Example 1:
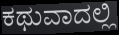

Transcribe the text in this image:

ಕಥುವಾದಲ್ಲಿ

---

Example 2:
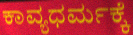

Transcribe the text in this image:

ಕಾವ್ಯಧರ್ಮಕ್ಕೆ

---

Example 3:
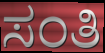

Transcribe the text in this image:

ಸಂತಿ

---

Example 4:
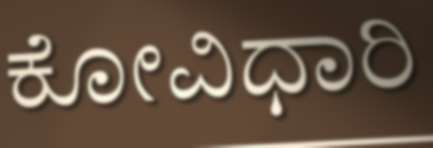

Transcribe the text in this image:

ಕೋವಿಧಾರಿ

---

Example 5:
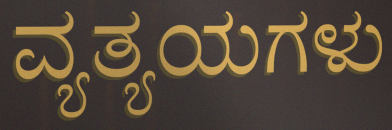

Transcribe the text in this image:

ವ್ಯತ್ಯಯಗಳು